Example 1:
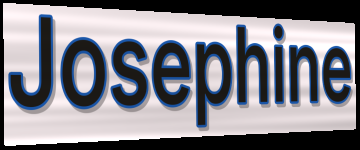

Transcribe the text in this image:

Josephine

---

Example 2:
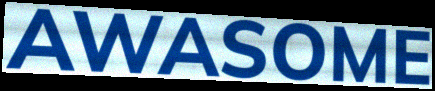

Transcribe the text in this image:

AWASOME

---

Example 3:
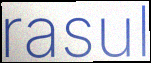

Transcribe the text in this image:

rasul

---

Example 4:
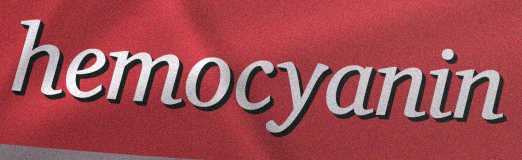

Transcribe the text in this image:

hemocyanin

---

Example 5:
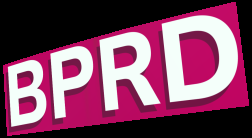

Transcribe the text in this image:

BPRD